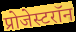
प्रोजेस्टरॉन